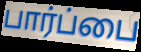
பார்ப்பை